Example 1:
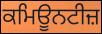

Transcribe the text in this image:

ਕਮਿਊਨਟੀਜ਼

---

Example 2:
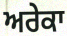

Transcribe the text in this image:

ਅਰੇਕਾ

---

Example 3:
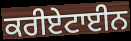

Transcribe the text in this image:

ਕਰੀਏਟਾਈਨ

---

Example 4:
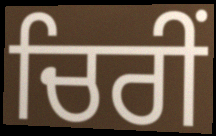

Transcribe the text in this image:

ਚਿਰੀਂ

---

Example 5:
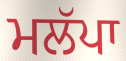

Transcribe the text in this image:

ਮਲੱਪਾ